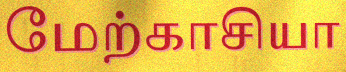
மேற்காசியா